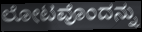
ಲೋಟವೊಂದನ್ನು